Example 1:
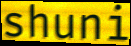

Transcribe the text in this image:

shuni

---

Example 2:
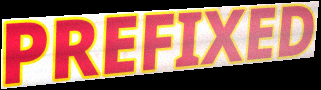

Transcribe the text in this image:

PREFIXED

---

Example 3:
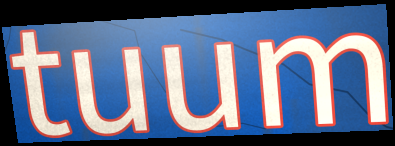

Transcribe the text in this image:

tuum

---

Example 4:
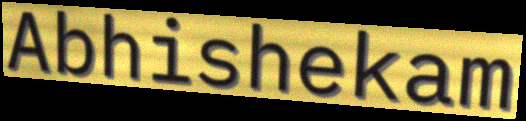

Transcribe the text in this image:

Abhishekam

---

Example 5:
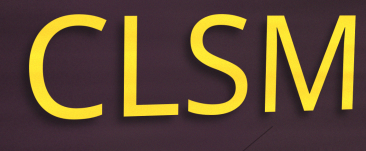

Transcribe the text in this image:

CLSM